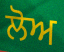
ਲੋਅ